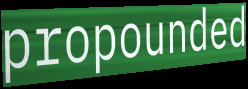
propounded